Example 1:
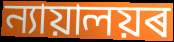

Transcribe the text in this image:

ন্যায়ালয়ৰ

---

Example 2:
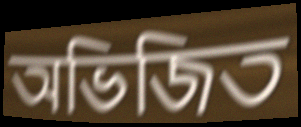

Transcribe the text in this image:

অভিজিত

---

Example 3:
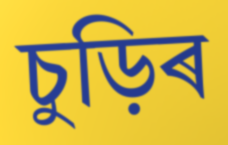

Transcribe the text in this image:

চুড়িৰ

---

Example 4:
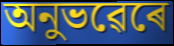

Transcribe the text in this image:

অনুভৱেৰে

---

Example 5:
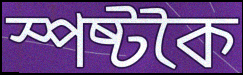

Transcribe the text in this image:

স্পষ্টকৈ